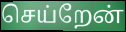
செய்றேன்